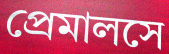
প্রেমালসে